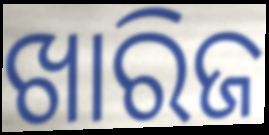
ଖାରିଜ